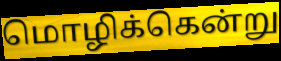
மொழிக்கென்று